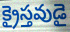
క్రైస్తవుడై